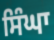
ਸਿੰਘਾ